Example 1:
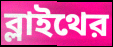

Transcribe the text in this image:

ব্লাইথের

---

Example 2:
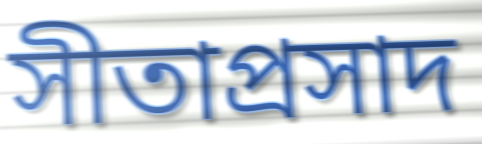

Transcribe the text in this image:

সীতাপ্রসাদ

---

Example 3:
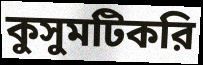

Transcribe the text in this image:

কুসুমটিকরি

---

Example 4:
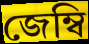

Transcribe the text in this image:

জেম্বি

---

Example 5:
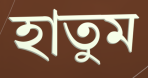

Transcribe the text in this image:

হাতুম